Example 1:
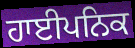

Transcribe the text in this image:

ਹਾਈਪਨਿਕ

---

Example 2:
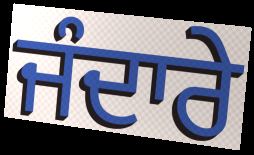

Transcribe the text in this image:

ਜੰਦਾਰੇ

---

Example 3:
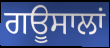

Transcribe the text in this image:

ਗਊਸਾਲਾਂ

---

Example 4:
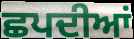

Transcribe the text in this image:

ਛਪਦੀਆਂ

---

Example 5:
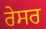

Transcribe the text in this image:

ਰੇਸਰ